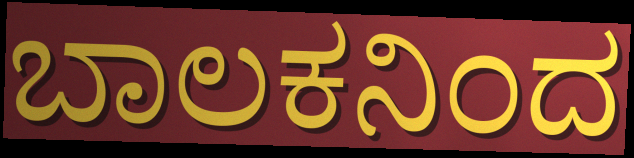
ಬಾಲಕನಿಂದ